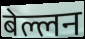
बेल्लन